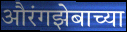
औरंगझेबाच्या